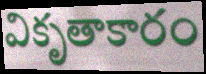
వికృతాకారం